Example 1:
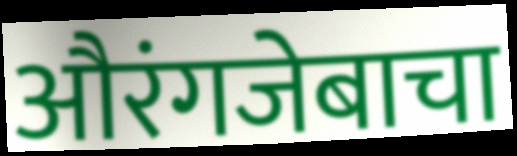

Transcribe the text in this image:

औरंगजेबाचा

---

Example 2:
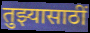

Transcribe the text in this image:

तुझ्यासाठीं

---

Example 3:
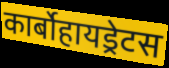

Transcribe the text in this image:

कार्बोहायड्रेटस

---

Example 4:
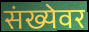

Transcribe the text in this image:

संख्येवर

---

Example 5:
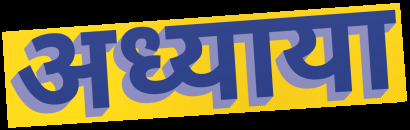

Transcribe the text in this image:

अध्याया